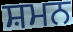
ਸ਼ਮਨ